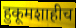
हुकूमशाहीच